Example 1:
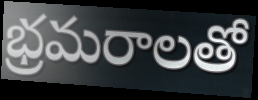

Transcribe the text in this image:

భ్రమరాలతో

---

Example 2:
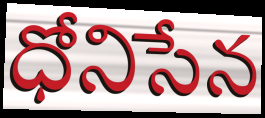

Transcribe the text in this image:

ధోనిసేన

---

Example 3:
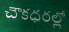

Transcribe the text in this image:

చౌకధరల్లో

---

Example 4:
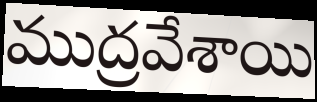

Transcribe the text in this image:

ముద్రవేశాయి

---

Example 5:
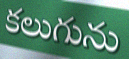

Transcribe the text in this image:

కలుగును